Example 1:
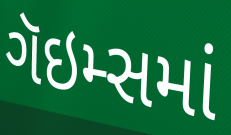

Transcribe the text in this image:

ગૅઇમ્સમાં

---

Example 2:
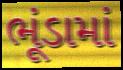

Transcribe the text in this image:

ભૂંડામાં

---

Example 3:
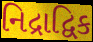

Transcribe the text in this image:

નિદ્રાદ્વિક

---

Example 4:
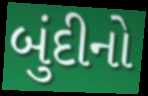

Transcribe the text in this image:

બુંદીનો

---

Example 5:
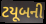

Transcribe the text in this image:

ટયૂબની